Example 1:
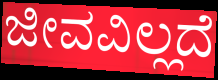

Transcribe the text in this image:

ಜೀವವಿಲ್ಲದೆ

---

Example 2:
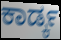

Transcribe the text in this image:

ಕಾರ್ಡ್ಕ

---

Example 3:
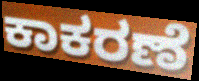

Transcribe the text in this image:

ಕಾಕರಣೆ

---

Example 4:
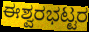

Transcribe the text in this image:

ಈಶ್ವರಭಟ್ಟರ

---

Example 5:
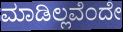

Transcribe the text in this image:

ಮಾಡಿಲ್ಲವೆಂದೇ